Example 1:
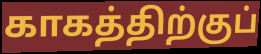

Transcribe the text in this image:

காகத்திற்குப்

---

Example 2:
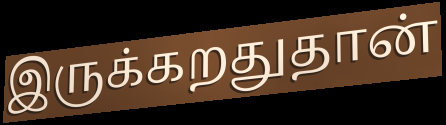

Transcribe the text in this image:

இருக்கறதுதான்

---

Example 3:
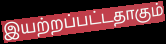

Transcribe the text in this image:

இயற்றப்பட்டதாகும்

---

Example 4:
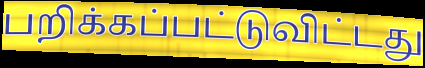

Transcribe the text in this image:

பறிக்கப்பட்டுவிட்டது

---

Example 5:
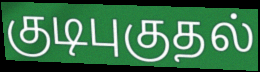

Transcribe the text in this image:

குடிபுகுதல்